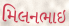
મિલનભાઇ